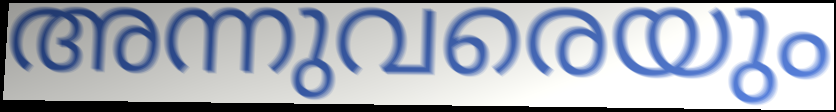
അന്നുവരെയും